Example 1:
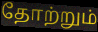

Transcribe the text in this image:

தோற்றும்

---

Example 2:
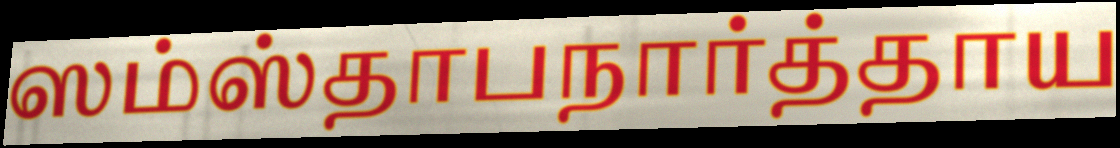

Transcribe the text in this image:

ஸம்ஸ்தாபநார்த்தாய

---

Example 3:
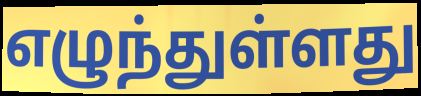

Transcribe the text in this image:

எழுந்துள்ளது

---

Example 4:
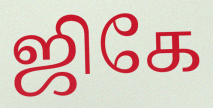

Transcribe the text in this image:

ஜிகே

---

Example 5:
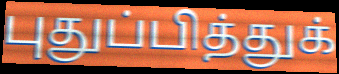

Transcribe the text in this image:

புதுப்பித்துக்